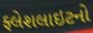
ફ્લેશલાઇટનો